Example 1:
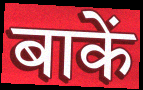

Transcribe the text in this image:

बाकें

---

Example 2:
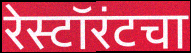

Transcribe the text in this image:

रेस्टॉरंटचा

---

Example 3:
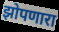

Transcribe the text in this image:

झोपणारा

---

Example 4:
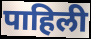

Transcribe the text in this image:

पाहिली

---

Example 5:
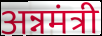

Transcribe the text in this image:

अन्नमंत्री